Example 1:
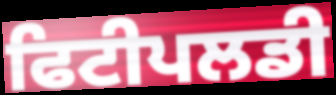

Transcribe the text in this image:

ਫਿਟੀਪਲਡੀ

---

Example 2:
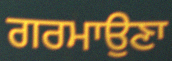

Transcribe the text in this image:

ਗਰਮਾਉਣਾ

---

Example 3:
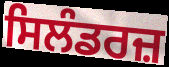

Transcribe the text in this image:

ਸਿਲੰਡਰਜ਼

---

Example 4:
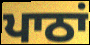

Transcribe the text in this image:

ਪਾਠਾਂ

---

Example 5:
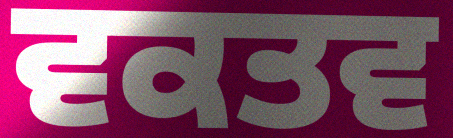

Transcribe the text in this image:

ਵਕਤਵ